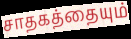
சாதகத்தையும்